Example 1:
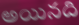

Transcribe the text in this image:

అయినది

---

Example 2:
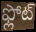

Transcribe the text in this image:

ఫ్లోట్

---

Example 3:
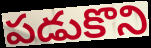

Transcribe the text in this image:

పడుకొని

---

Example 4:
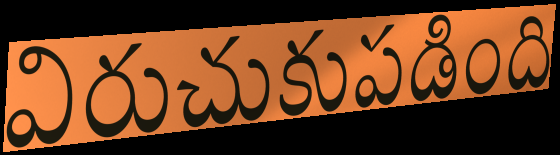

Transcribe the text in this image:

విరుచుకుపడింది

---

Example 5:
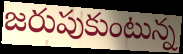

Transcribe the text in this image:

జరుపుకుంటున్న